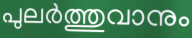
പുലർത്തുവാനും